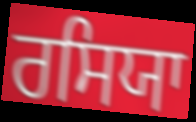
ਰਸਿਯਾ